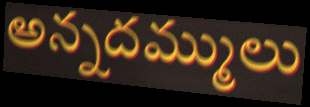
అన్నదమ్ములు